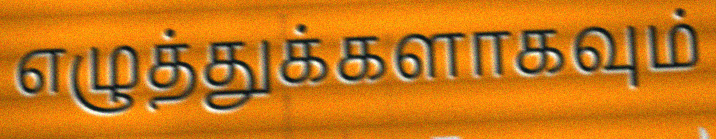
எழுத்துக்களாகவும்